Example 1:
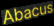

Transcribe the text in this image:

Abacus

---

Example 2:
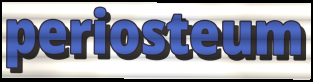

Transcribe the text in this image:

periosteum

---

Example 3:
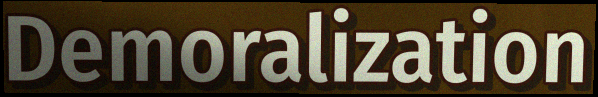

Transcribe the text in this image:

Demoralization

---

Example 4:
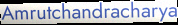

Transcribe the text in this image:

Amrutchandracharya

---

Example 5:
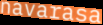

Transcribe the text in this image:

navarasa